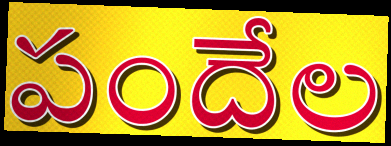
పందేల